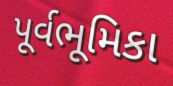
પૂર્વભૂમિકા